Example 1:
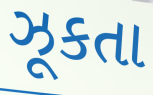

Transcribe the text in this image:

ઝૂકતા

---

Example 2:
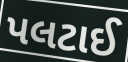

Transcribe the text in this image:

પલટાઈ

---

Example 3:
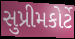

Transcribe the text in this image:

સુપ્રીમકોર્ટે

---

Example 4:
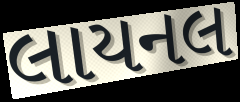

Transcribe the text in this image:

લાયનલ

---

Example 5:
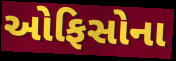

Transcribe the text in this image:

ઓફિસોના